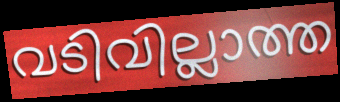
വടിവില്ലാത്ത